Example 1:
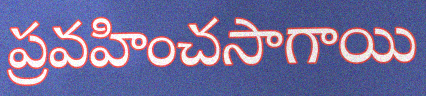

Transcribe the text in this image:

ప్రవహించసాగాయి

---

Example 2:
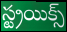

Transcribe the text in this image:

స్ట్రయిక్స్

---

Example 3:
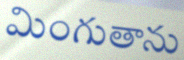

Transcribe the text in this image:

మింగుతాను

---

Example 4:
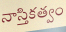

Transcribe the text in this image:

నాస్తికత్వం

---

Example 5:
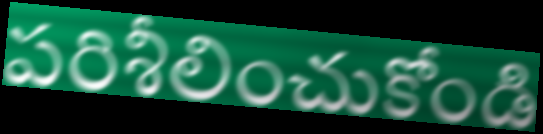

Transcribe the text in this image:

పరిశీలించుకోండి